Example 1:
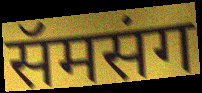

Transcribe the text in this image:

सॅमसंग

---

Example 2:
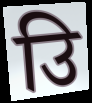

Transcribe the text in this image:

उि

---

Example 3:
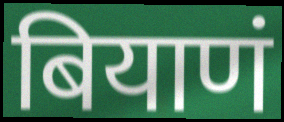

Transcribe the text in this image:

बियाणं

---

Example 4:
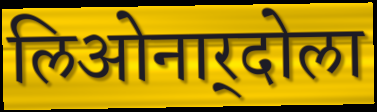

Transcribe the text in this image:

लिओनार्दोला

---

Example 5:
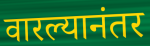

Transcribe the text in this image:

वारल्यानंतर